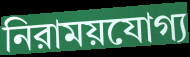
নিরাময়যোগ্য